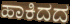
ಹಾಕಿದದ